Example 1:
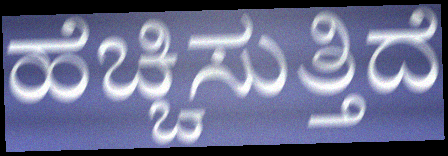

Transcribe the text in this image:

ಹೆಚ್ಚಿಸುತ್ತಿದೆ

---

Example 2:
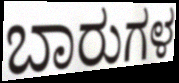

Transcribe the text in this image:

ಬಾರುಗಳ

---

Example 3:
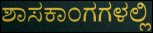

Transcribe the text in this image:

ಶಾಸಕಾಂಗಗಳಲ್ಲಿ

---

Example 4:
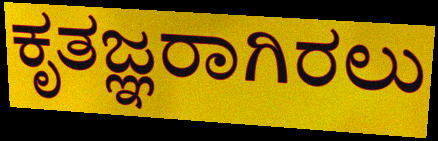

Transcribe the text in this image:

ಕೃತಜ್ಞರಾಗಿರಲು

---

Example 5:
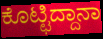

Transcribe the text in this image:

ಕೊಟ್ಟಿದ್ದಾನಾ